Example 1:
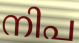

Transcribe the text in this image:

നിപ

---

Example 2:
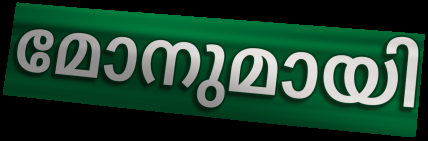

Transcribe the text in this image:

മോനുമായി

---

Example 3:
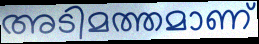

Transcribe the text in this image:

അടിമത്തമാണ്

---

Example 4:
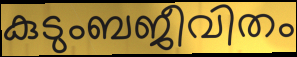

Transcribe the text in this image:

കുടുംബജീവിതം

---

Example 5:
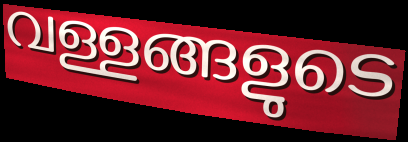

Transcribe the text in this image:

വള്ളങ്ങളുടെ